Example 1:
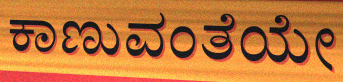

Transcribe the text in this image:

ಕಾಣುವಂತೆಯೇ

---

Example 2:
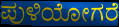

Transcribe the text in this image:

ಪುಳಿಯೋಗರೆ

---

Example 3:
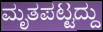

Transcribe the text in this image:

ಮೃತಪಟ್ಟದ್ದು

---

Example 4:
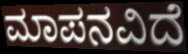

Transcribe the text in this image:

ಮಾಪನವಿದೆ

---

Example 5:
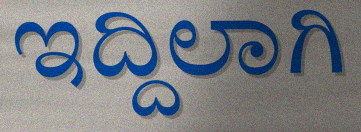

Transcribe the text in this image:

ಇದ್ದಿಲಾಗಿ